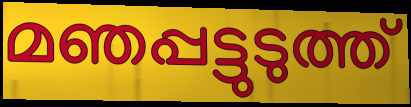
മഞപ്പട്ടുടുത്ത്